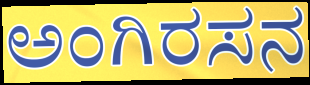
ಅಂಗಿರಸನ